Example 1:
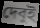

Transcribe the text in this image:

দেবুই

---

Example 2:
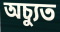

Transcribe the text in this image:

অচ্যুত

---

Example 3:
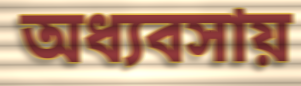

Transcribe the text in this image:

অধ্যবসায়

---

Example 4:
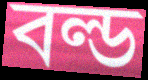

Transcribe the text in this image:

বল্ড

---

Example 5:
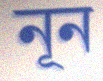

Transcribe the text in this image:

নূন